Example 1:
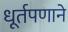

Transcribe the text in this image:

धूर्तपणाने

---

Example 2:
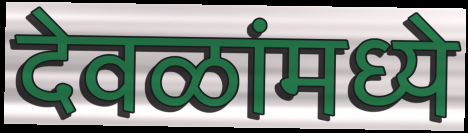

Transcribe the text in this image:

देवळांमध्ये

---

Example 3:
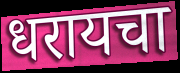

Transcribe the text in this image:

धरायचा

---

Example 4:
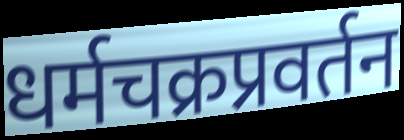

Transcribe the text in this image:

धर्मचक्रप्रवर्तन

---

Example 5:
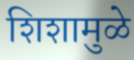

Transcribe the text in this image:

शिशामुळे